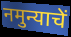
नमुन्याचें